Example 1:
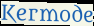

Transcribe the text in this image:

Kermode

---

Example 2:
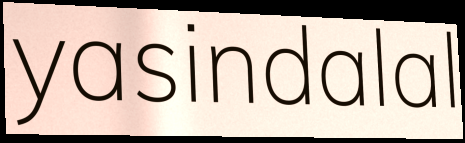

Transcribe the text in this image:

yasindalal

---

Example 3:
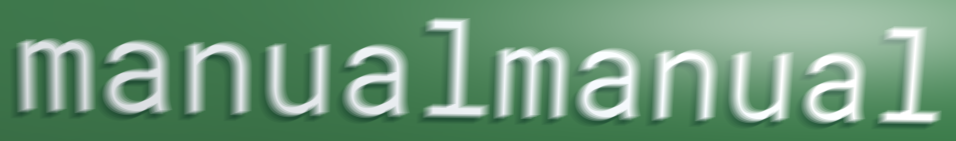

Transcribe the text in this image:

manualmanual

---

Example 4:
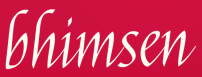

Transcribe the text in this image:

bhimsen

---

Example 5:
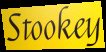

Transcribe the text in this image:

Stookey